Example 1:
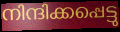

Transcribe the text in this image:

നിന്ദിക്കപ്പെട്ടു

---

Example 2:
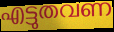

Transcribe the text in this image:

എട്ടുതവണ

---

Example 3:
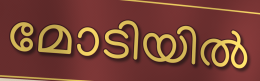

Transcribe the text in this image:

മോടിയിൽ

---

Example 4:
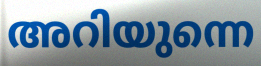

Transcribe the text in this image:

അറിയുന്നെ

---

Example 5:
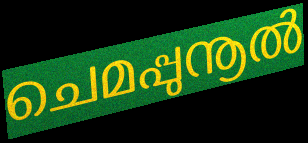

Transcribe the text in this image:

ചെമപ്പുനൂൽ